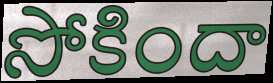
సోకిందా